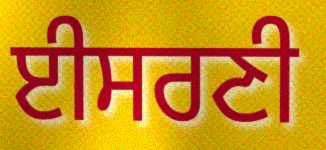
ਈਸਰਣੀ